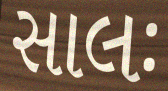
સાલઃ